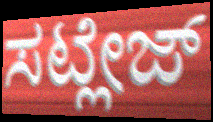
ಸಟ್ಲೇಜ್